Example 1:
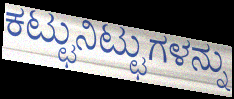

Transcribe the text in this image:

ಕಟ್ಟುನಿಟ್ಟುಗಳನ್ನು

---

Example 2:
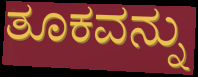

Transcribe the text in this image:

ತೂಕವನ್ನು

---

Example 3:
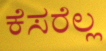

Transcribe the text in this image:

ಕೆಸರೆಲ್ಲ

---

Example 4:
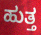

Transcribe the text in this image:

ಹುತ್ತ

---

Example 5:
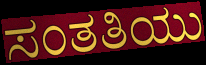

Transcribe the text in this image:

ಸಂತತಿಯು